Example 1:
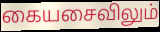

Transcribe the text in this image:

கையசைவிலும்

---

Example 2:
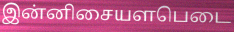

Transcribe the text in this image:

இன்னிசையளபெடை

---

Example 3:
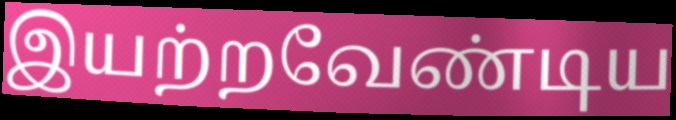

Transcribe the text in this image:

இயற்றவேண்டிய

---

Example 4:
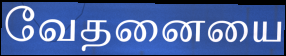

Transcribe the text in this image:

வேதனையை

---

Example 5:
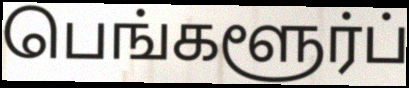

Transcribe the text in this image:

பெங்களூர்ப்